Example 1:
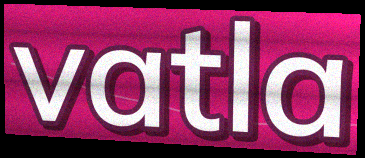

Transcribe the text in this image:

vatla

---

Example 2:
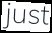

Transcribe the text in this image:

just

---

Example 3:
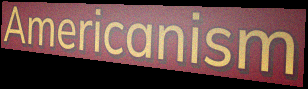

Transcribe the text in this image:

Americanism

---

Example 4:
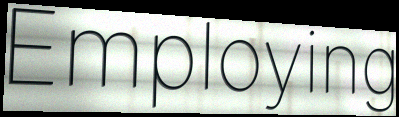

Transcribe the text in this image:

Employing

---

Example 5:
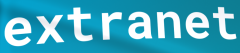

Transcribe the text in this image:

extranet